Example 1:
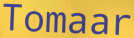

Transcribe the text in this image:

Tomaar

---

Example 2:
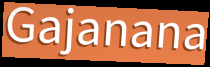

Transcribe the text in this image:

Gajanana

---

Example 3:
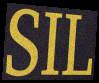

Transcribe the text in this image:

SIL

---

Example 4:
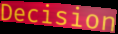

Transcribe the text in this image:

Decision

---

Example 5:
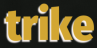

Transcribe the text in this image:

trike